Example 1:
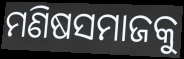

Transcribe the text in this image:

ମଣିଷସମାଜକୁ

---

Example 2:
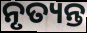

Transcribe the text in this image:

ନୃତ୍ୟନ୍ତ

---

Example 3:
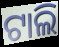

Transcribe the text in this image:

ଟାଲି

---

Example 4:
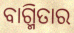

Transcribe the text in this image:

ବାଗ୍ମିତାର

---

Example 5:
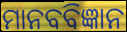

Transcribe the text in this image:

ମାନବବିଜ୍ଞାନ